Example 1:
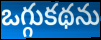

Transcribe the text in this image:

ఒగ్గుకథను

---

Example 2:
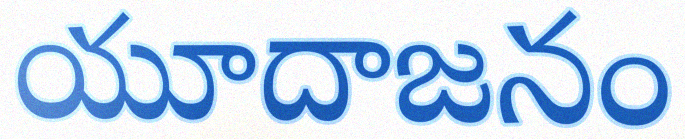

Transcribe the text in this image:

యూదాజనం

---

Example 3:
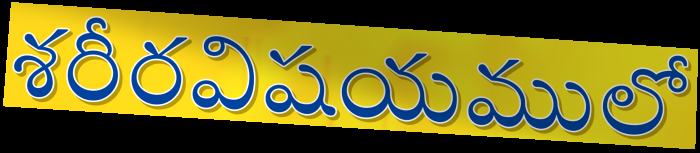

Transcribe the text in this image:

శరీరవిషయములో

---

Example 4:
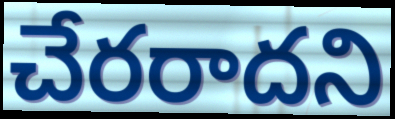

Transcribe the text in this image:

చేరరాదని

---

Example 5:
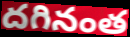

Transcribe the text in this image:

దగినంత